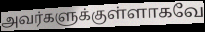
அவர்களுக்குள்ளாகவே